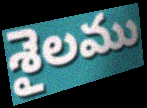
శైలము